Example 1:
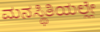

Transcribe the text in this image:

ಮನಸ್ಥಿತಿಯಲ್ಲೇ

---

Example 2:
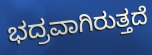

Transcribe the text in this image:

ಭದ್ರವಾಗಿರುತ್ತದೆ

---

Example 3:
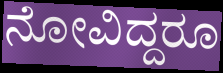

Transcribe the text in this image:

ನೋವಿದ್ದರೂ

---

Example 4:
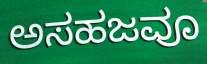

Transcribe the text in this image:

ಅಸಹಜವೂ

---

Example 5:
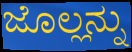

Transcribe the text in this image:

ಜೊಲ್ಲನ್ನು